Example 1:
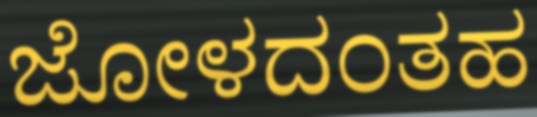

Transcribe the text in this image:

ಜೋಳದಂತಹ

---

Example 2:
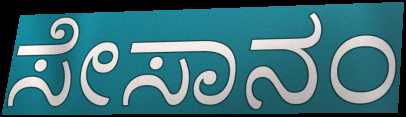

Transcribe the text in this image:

ಸೇಸಾನಂ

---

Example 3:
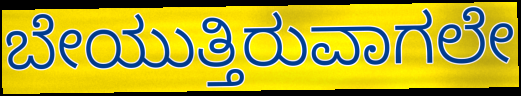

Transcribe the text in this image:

ಬೇಯುತ್ತಿರುವಾಗಲೇ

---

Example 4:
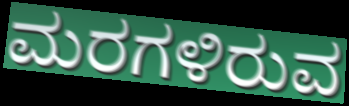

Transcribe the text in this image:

ಮರಗಳಿರುವ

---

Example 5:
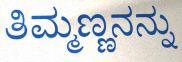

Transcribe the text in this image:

ತಿಮ್ಮಣ್ಣನನ್ನು